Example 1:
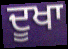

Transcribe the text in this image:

ਦੂਖਾ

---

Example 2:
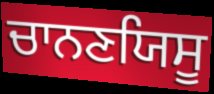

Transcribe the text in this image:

ਚਾਨਣਯਿਸੂ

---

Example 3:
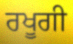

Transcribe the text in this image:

ਰਖੂਗੀ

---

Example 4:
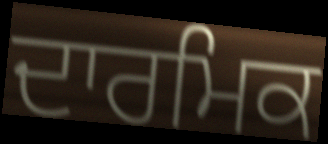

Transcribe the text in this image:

ਦਾਰਮਿਕ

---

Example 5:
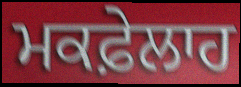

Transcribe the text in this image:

ਮਕਫ਼ੇਲਾਹ